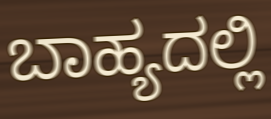
ಬಾಹ್ಯದಲ್ಲಿ